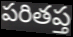
పరితప్త